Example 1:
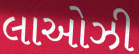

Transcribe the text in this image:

લાઓઝી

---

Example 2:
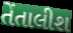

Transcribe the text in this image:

તેંતાલીશ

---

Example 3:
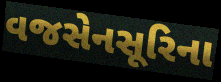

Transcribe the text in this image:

વજસેનસૂરિના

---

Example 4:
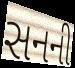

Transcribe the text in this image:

સનની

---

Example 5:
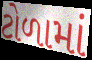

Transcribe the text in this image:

ટોળામાં